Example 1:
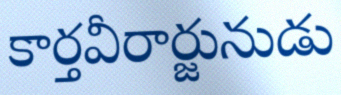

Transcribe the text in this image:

కార్తవీరార్జునుడు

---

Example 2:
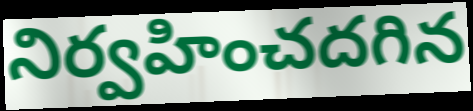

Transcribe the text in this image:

నిర్వహించదగిన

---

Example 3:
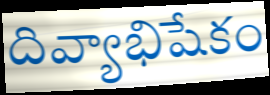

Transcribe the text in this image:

దివ్యాభిషేకం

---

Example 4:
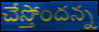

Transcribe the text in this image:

చేస్తోందన్న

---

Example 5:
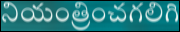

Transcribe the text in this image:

నియంత్రించగలిగి